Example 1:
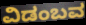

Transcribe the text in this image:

ವಿಡಂಬವ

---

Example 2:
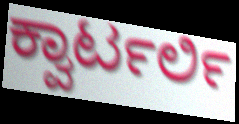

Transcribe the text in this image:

ಕ್ವಾರ್ಟರ್ಲಿ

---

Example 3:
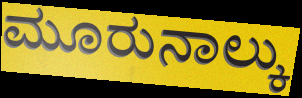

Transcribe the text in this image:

ಮೂರುನಾಲ್ಕು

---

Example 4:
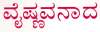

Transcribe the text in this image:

ವೈಷ್ಣವನಾದ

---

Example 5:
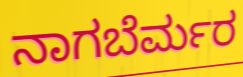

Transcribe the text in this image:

ನಾಗಬೆರ್ಮರ